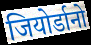
जियोर्डानो